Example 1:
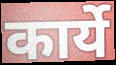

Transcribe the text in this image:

कार्ये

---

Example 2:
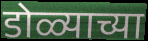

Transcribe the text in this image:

डोळ्याच्या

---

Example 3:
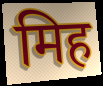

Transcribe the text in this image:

मिह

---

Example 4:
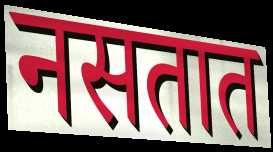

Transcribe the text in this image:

नसतात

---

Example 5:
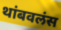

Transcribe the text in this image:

थांबवलंस